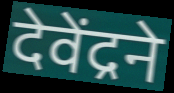
देवेंद्रने